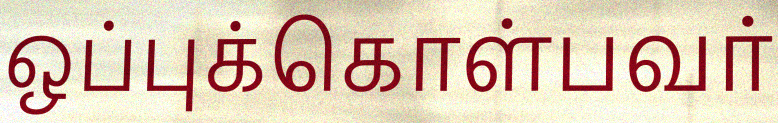
ஒப்புக்கொள்பவர்